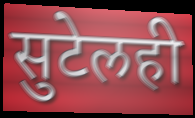
सुटेलही